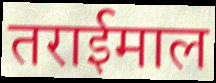
तराईमाल